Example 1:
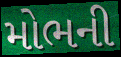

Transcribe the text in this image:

મોભની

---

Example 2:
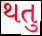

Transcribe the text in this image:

થતુ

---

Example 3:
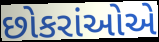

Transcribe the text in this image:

છોકરાંઓએ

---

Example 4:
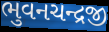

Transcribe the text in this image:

ભુવનચન્દ્રજી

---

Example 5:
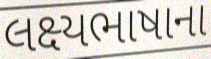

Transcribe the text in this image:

લક્ષ્યભાષાના